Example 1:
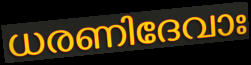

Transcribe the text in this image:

ധരണിദേവാഃ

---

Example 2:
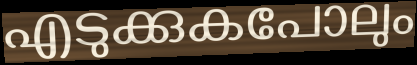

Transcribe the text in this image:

എടുക്കുകപോലും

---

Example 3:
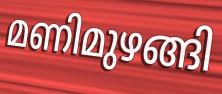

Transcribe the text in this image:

മണിമുഴങ്ങി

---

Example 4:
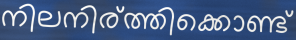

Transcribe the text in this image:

നിലനിര്ത്തിക്കൊണ്ട്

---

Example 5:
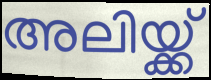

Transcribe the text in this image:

അലിയ്ക്ക്